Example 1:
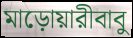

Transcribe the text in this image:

মাড়োয়ারীবাবু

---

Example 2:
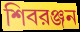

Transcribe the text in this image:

শিবরঞ্জন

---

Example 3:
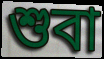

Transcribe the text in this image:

শুবা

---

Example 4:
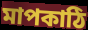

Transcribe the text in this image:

মাপকাঠি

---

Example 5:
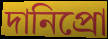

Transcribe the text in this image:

দানিপ্রো